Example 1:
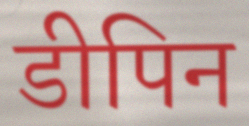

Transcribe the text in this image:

डीपिन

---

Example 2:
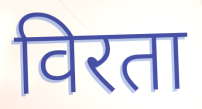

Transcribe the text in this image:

विरता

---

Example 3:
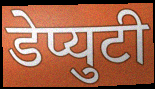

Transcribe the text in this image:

डेप्युटी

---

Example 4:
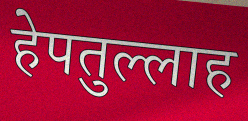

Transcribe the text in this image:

हेपतुल्लाह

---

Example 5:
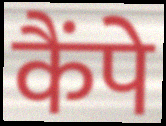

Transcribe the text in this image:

कैंपे